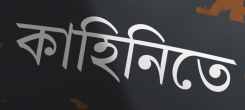
কাহিনিতে